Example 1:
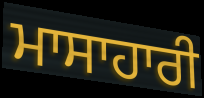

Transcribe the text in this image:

ਮਾਸਾਹਾਰੀ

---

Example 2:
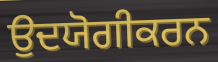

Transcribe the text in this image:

ਉਦਯੋਗੀਕਰਨ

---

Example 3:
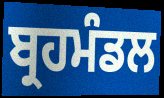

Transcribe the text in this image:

ਬ੍ਰਹਮੰਡਲ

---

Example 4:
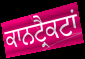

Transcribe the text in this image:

ਕਾਨਟ੍ਰੈਕਟਾਂ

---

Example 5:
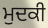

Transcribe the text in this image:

ਮੁਦਕੀ